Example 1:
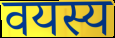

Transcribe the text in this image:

वयस्य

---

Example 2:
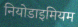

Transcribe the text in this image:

नियोडाइमियम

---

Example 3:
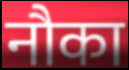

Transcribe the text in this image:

नौका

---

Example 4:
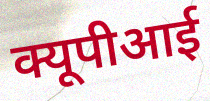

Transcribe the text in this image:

क्यूपीआई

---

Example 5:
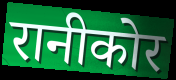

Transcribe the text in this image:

रानीकोर